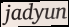
jadyun